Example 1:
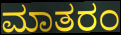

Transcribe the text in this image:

ಮಾತರಂ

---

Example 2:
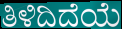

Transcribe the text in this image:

ತಿಳಿದಿದೆಯೆ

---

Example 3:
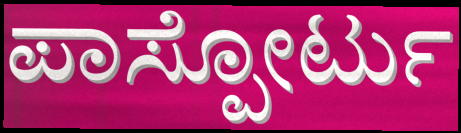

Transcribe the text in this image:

ಪಾಸ್ಪೋರ್ಟು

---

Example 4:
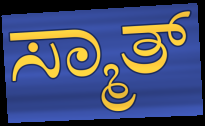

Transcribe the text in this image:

ಸ್ಮಾತ್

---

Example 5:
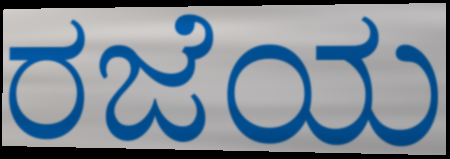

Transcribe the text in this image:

ರಜೆಯ